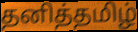
தனித்தமிழ்